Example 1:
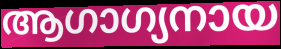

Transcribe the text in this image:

ആഗാഗ്യനായ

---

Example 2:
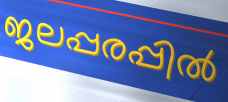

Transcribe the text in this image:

ജലപ്പരപ്പിൽ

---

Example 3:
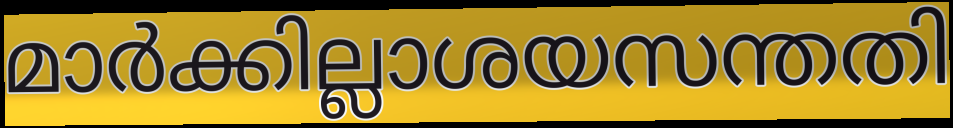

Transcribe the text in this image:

മാർക്കില്ലാശയസന്തതി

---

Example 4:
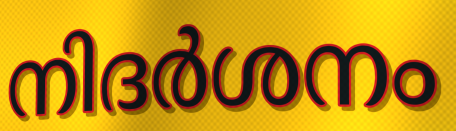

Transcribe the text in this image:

നിദർശനം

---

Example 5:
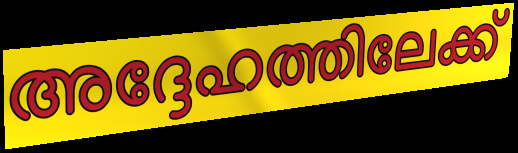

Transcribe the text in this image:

അദ്ദേഹത്തിലേക്ക്